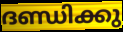
ദണ്ഡിക്കു